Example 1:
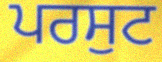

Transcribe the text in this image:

ਪਰਸੁਟ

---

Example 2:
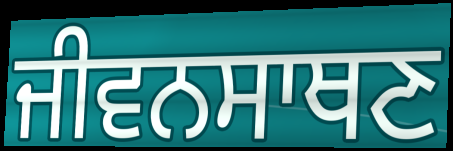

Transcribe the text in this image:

ਜੀਵਨਸਾਥਣ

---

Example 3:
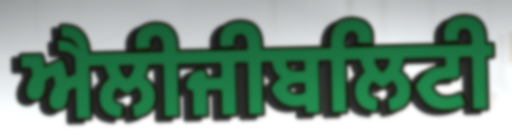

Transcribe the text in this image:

ਐਲੀਜੀਬਲਿਟੀ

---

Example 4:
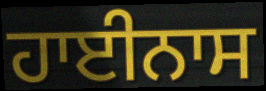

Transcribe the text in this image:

ਹਾਈਨਾਸ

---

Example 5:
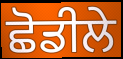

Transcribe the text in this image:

ਛੋਡੀਲੇ